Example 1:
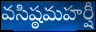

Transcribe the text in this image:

వసిష్ఠమహర్షీ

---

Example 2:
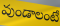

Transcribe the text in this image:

వుండాలంటే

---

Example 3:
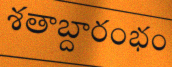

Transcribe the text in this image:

శతాబ్దారంభం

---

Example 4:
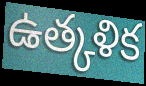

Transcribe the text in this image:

ఉత్కళిక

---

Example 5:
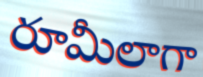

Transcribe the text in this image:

రూమీలాగా